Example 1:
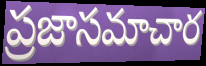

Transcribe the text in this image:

ప్రజాసమాచార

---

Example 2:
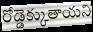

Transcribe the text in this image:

రోడ్డెక్కుతాయని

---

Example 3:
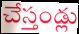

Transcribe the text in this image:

చేస్తండ్లు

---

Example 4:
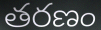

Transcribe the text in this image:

తరణం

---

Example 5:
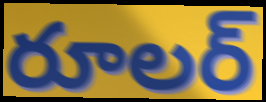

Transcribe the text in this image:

రూలర్